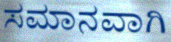
ಸಮಾನವಾಗಿ